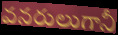
వనరులుగానీ